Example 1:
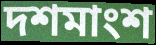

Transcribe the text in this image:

দশমাংশ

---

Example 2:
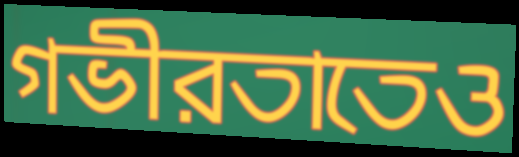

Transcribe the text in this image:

গভীরতাতেও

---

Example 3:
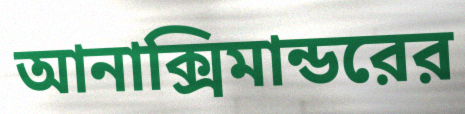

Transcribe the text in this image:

আনাক্সিমান্ডরের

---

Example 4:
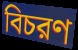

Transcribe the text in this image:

বিচরণ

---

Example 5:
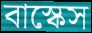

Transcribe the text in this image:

বাস্কেস